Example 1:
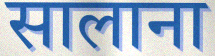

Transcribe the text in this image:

सालाना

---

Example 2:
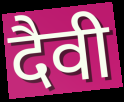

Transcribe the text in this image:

दैवी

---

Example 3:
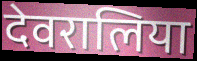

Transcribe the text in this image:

देवरालिया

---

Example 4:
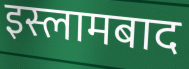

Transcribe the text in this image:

इस्लामबाद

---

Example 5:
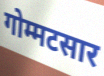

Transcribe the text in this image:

गोम्मटसार